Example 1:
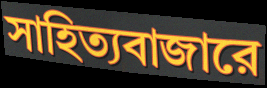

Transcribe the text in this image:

সাহিত্যবাজারে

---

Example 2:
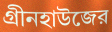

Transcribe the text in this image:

গ্রীনহাউজের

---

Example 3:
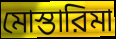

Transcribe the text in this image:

মোস্তারিমা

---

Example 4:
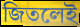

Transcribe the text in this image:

জিতলেই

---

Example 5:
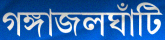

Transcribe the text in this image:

গঙ্গাজলঘাঁটি